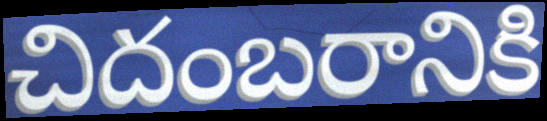
చిదంబరానికి